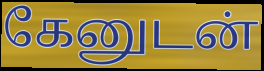
கேனுடன்